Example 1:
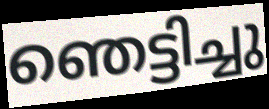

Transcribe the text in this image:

ഞെട്ടിച്ചു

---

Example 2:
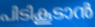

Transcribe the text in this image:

പിടികൂടാൻ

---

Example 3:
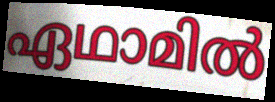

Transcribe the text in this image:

ഏഥാമിൽ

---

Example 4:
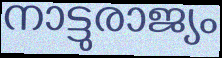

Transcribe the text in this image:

നാട്ടുരാജ്യം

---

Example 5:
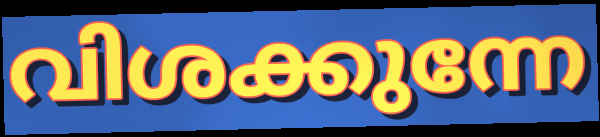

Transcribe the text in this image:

വിശക്കുന്നേ